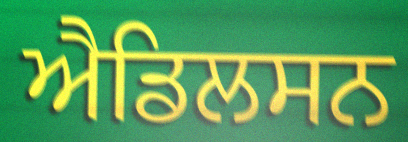
ਐਡਿਲਸਨ